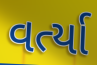
વર્ત્યા